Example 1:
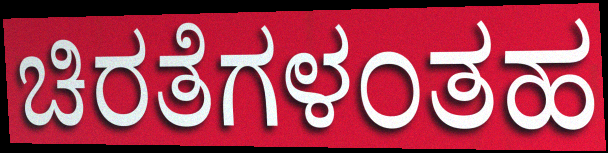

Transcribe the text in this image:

ಚಿರತೆಗಳಂತಹ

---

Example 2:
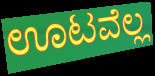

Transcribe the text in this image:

ಊಟವೆಲ್ಲ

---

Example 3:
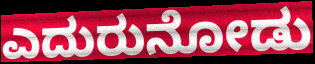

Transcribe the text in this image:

ಎದುರುನೋಡು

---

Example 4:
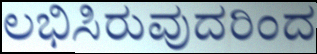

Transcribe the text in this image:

ಲಭಿಸಿರುವುದರಿಂದ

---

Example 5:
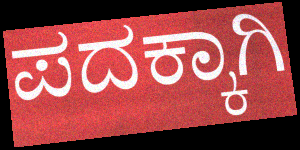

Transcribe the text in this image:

ಪದಕ್ಕಾಗಿ